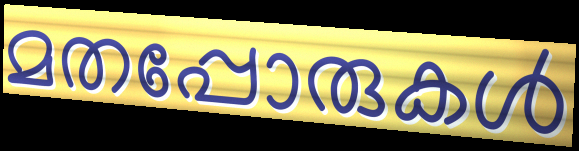
മതപ്പോരുകൾ